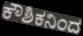
ಕೌಶಿಕನಿಂದ